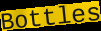
Bottles